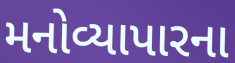
મનોવ્યાપારના